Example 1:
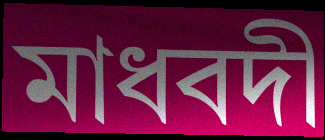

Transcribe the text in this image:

মাধবদী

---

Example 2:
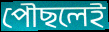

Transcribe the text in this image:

পৌছলেই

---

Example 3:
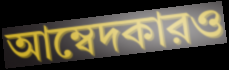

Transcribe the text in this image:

আম্বেদকারও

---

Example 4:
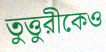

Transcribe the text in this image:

তুত্তুরীকেও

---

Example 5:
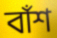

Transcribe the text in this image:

বাঁশ